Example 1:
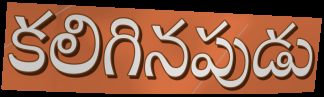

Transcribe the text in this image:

కలిగినపుడు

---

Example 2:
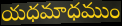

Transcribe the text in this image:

యధమాధముం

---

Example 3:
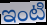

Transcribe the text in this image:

ఇంటి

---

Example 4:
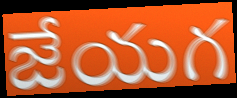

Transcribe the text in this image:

జేయగ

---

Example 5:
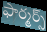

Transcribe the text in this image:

ఫార్మర్స్